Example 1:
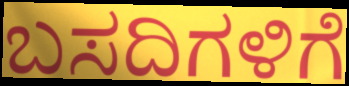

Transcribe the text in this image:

ಬಸದಿಗಳಿಗೆ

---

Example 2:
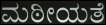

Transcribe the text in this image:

ಮಠೀಯತೆ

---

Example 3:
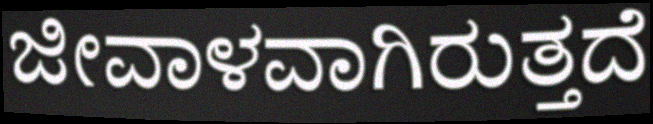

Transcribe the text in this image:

ಜೀವಾಳವಾಗಿರುತ್ತದೆ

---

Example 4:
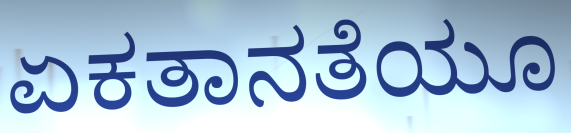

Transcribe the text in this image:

ಏಕತಾನತೆಯೂ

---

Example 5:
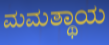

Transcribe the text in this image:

ಮಮತ್ಥಾಯ